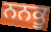
ਨਨਕੂ